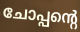
ചോപ്പന്റെ